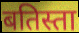
बतिस्ता